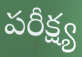
పరీక్ష్య